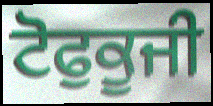
ਟੋਫੁਕੂਜੀ